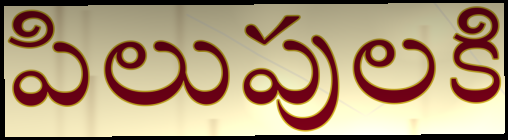
పిలుపులకి